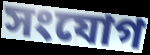
সংযোগ